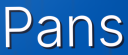
Pans